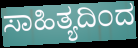
ಸಾಹಿತ್ಯದಿಂದ